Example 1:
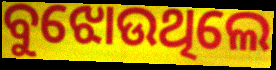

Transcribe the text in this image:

ବୁଝୋଉଥିଲେ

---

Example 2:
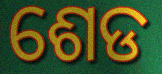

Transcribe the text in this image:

ଶେଡ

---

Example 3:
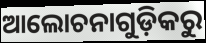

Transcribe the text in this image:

ଆଲୋଚନାଗୁଡ଼ିକରୁ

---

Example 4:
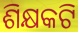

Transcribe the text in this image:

ଶିକ୍ଷକଟି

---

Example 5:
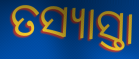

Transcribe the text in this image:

ତସ୍ୟାସ୍ତା